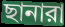
ছানারা